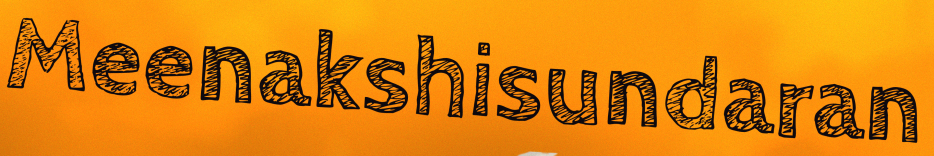
Meenakshisundaran